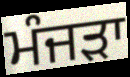
ਮੰਜੜਾ